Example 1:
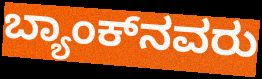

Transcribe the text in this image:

ಬ್ಯಾಂಕ್‌ನವರು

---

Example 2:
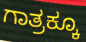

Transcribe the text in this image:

ಗಾತ್ರಕ್ಕೂ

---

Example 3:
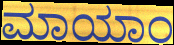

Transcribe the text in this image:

ಮಾಯಾಂ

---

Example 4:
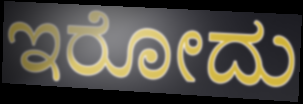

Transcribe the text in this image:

ಇರೋದು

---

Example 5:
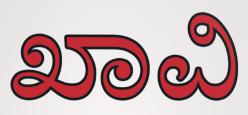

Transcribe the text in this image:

ಖಾವಿ